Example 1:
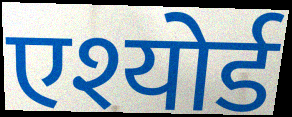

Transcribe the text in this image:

एश्योर्ड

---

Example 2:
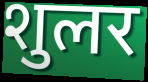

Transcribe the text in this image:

शुलर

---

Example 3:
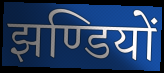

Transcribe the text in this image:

झण्डियों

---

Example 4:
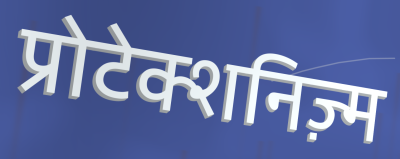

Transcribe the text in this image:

प्रोटेक्शनिज़्म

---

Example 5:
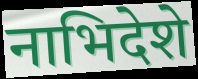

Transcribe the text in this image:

नाभिदेशे